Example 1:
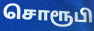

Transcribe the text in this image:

சொரூபி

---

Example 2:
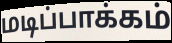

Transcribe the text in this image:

மடிப்பாக்கம்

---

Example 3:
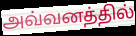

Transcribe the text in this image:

அவ்வனத்தில்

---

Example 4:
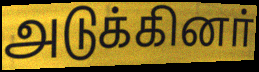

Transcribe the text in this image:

அடுக்கினர்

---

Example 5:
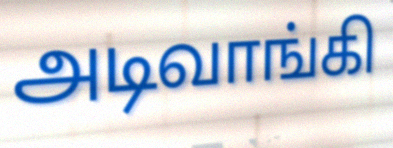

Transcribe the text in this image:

அடிவாங்கி